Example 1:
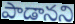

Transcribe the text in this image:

పాడానని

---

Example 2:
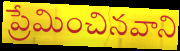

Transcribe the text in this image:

ప్రేమించినవాని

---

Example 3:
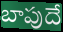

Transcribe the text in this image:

బాపుదే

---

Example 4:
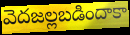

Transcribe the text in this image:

వెదజల్లబడిందాకా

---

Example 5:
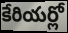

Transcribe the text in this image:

కేరియర్లో